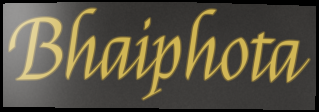
Bhaiphota